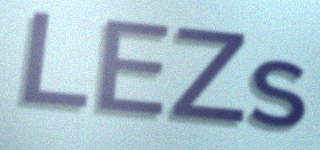
LEZs